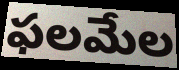
ఫలమేల